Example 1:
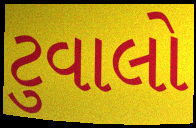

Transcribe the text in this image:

ટુવાલો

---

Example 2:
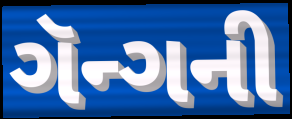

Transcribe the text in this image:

ગૅન્ગની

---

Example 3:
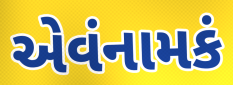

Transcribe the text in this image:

એવંનામકં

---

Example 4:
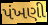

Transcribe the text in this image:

પંખણી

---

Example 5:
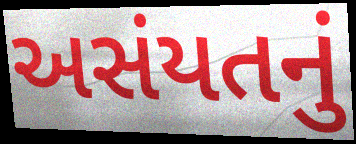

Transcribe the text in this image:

અસંયતનું